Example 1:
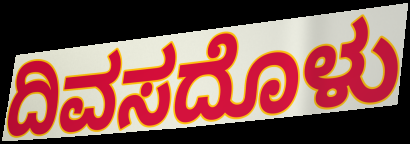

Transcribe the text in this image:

ದಿವಸದೊಳು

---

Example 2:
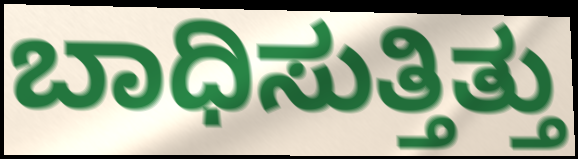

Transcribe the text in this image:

ಬಾಧಿಸುತ್ತಿತ್ತು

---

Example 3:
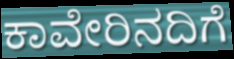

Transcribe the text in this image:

ಕಾವೇರಿನದಿಗೆ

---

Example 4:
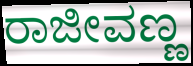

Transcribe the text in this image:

ರಾಜೀವಣ್ಣ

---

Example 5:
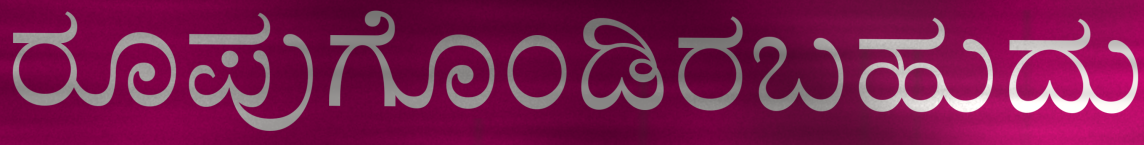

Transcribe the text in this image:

ರೂಪುಗೊಂಡಿರಬಹುದು